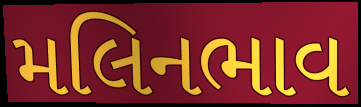
મલિનભાવ